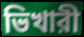
ভিখারী